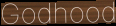
Godhood